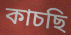
কাচছি